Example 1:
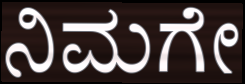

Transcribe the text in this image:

ನಿಮಗೇ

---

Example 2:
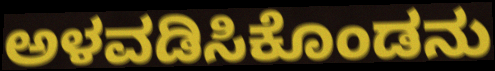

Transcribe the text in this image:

ಅಳವಡಿಸಿಕೊಂಡನು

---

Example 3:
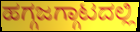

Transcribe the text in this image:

ಹಗ್ಗಜಗ್ಗಾಟದಲ್ಲಿ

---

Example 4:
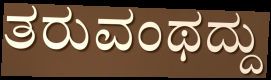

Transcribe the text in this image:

ತರುವಂಥದ್ದು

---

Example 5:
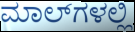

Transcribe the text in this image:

ಮಾಲ್‌ಗಳಲ್ಲಿ